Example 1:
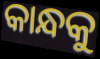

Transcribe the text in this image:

କାନ୍ଧକୁ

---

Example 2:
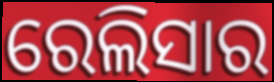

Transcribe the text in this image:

ରେଲିସାର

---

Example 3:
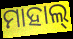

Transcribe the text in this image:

ମାହାଲ୍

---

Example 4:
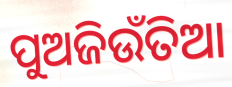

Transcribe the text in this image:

ପୁଅଜିଉଁତିଆ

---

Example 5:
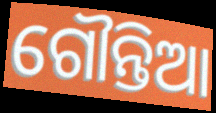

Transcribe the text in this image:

ଗୌନ୍ତିଆ